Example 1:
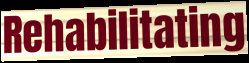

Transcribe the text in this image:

Rehabilitating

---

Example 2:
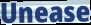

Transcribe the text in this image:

Unease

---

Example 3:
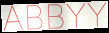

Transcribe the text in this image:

ABBYY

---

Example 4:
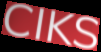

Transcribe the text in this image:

CIKS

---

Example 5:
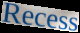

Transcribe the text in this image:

Recess